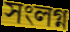
সংলগ্ন